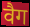
वैग